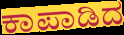
ಕಾಪಾಡಿದ